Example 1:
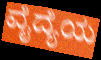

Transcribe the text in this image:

ವೈದ್ಯೆಯ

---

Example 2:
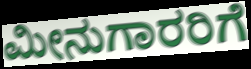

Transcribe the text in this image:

ಮೀನುಗಾರರಿಗೆ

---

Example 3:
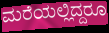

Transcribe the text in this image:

ಮರೆಯಲ್ಲಿದ್ದರೂ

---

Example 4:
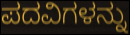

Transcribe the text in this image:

ಪದವಿಗಳನ್ನು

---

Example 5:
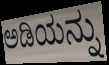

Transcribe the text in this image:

ಅಡಿಯನ್ನು